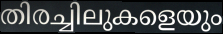
തിരച്ചിലുകളെയും